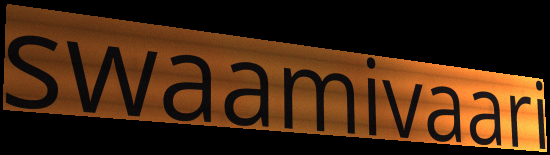
swaamivaari